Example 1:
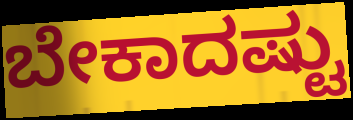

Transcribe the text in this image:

ಬೇಕಾದಷ್ಟು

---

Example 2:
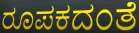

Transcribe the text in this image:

ರೂಪಕದಂತೆ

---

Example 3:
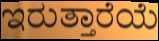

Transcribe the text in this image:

ಇರುತ್ತಾರೆಯೆ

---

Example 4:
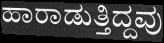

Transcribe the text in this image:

ಹಾರಾಡುತ್ತಿದ್ದವು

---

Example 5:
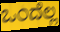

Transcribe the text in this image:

ಒಂದೆಲ್ಲ